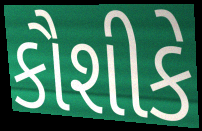
કૌશીકે